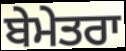
ਬੇਮੇਤਰਾ